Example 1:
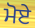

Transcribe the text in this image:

ਮੋਏ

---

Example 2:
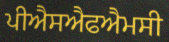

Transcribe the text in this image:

ਪੀਐਸਐਫਐਮਸੀ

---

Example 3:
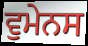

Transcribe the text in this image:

ਵੁਮੇਨਸ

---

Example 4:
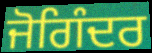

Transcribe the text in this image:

ਜੋਗਿੰਦਰ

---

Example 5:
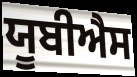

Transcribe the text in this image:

ਯੂਬੀਐਸ